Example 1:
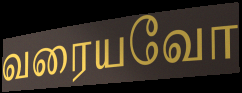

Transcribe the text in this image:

வரையவோ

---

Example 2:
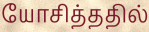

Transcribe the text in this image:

யோசித்ததில்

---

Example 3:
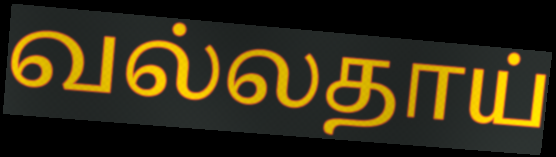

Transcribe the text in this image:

வல்லதாய்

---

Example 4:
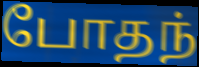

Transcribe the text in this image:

போதந்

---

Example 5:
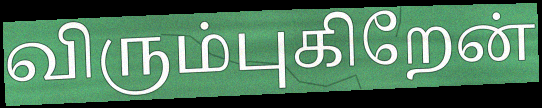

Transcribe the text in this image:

விரும்புகிறேன்